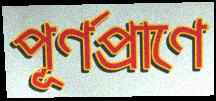
পূর্ণপ্রাণে